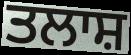
ਤਲਾਸ਼